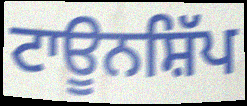
ਟਾਊਨਸ਼ਿੱਪ